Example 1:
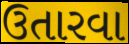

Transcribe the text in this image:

ઉતારવા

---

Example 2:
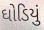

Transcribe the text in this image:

ઘોડિયું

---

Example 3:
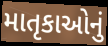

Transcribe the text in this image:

માતૃકાઓનું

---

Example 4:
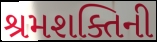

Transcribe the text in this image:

શ્રમશક્તિની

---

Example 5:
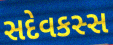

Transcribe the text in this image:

સદેવકસ્સ